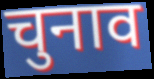
चुनाव